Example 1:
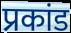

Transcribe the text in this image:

प्रकांड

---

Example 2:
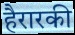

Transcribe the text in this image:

हैरारकी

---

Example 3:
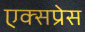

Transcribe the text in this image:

एक्‍सप्रेस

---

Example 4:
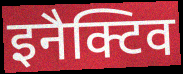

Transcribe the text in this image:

इनैक्टिव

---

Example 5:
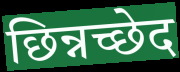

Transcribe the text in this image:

छिन्नच्छेद